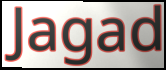
Jagad